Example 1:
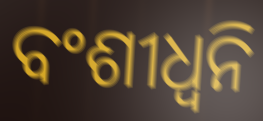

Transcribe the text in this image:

ବଂଶୀଧ୍ବନି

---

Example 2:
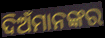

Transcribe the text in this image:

ଦିଅଁମାନଙ୍କର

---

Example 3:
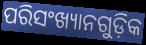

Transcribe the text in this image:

ପରିସଂଖ୍ୟାନଗୁଡ଼ିକ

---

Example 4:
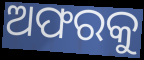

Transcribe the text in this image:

ଅଫରକୁ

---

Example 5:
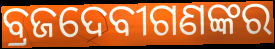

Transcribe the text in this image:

ବ୍ରଜଦେବୀଗଣଙ୍କର